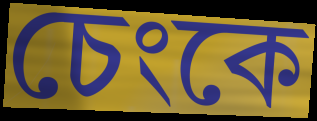
চেংকে